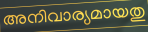
അനിവാര്യമായതു